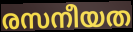
രസനീയത